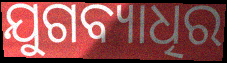
ଯୁଗବ୍ୟାଧିର